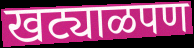
खट्याळपण